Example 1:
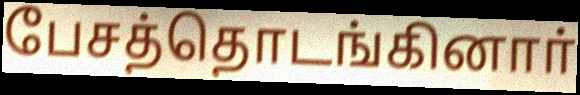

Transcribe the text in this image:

பேசத்தொடங்கினார்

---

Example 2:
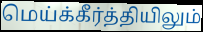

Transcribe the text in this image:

மெய்க்கீர்த்தியிலும்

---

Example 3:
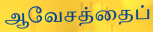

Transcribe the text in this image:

ஆவேசத்தைப்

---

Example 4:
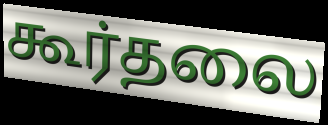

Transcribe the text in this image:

கூர்தலை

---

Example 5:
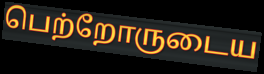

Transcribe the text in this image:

பெற்றோருடைய